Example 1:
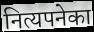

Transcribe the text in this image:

नित्यपनेका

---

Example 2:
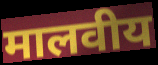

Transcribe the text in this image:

मालवीय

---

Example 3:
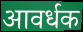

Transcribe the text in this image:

आवर्धक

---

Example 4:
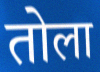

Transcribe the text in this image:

तोला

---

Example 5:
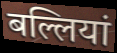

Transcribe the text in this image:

बल्लियां